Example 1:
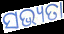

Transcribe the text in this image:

ସଭ୍ଯତା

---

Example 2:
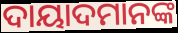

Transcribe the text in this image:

ଦାୟାଦମାନଙ୍କ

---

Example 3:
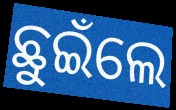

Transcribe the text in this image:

ଛୁଇଁଲେ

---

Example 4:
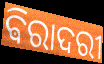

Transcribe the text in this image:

ଵିରାଦରୀ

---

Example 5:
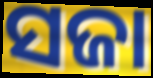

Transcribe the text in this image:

ସଜା